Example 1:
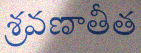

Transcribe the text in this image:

శ్రవణాతీత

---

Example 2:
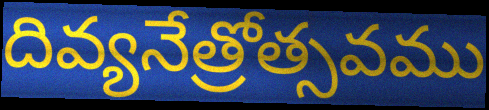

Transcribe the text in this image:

దివ్యనేత్రోత్సవము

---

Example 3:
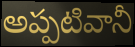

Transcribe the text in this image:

అప్పటివానీ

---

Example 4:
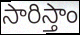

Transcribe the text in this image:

సారిస్తాం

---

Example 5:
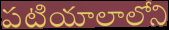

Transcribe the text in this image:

పటియాలాలోని